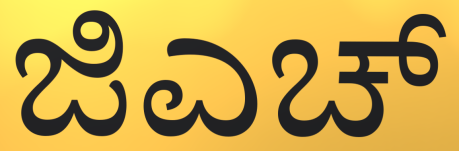
ಜಿಎಚ್